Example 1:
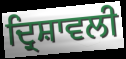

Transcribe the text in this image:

ਦ੍ਰਿਸ਼ਾਵਲੀ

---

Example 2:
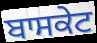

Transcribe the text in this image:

ਬਾਸਕੇਟ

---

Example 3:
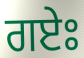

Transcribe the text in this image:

ਗਏਃ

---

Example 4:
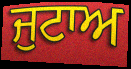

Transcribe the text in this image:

ਜੁਟਾਅ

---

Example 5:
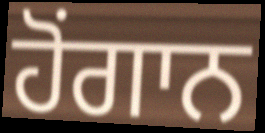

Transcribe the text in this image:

ਹੋਂਗਾਨ